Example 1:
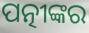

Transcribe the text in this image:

ପତ୍ନୀଙ୍କର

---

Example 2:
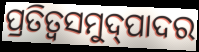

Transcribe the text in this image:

ପ୍ରତିତ୍ଵସମୁଦ୍‌ପାଦର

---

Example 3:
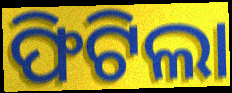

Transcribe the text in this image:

ଫିଟିଲା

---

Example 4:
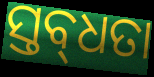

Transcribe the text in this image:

ସ୍ତବ୍‌ଧତା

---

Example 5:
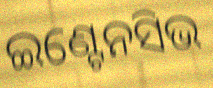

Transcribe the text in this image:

ଇଣ୍ଟେନସିଭ